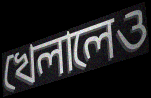
খেলালেও